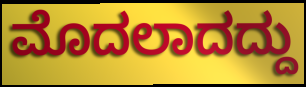
ಮೊದಲಾದದ್ದು